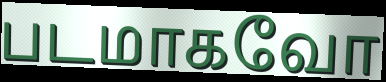
படமாகவோ